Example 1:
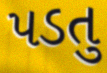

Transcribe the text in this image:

પડતુ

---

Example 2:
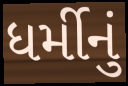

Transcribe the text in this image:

ધર્મીનું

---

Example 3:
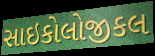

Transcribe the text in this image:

સાઇકોલોજીકલ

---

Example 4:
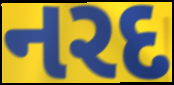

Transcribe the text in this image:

નરદ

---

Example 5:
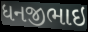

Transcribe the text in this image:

ધનજીભાઇ